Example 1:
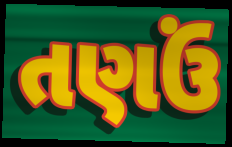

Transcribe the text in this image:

તણઉં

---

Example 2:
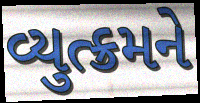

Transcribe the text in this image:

વ્યુત્ક્રમને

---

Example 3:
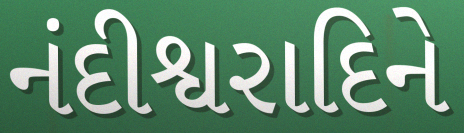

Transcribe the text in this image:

નંદીશ્વરાદિને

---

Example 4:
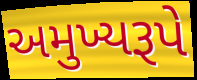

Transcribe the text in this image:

અમુખ્યરૂપે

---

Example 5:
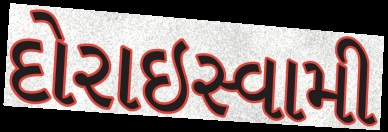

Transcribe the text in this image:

દોરાઇસ્વામી